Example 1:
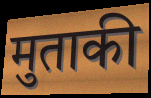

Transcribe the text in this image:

मुताकी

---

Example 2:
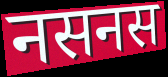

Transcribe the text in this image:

नसनस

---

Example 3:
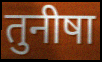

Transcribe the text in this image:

तुनीषा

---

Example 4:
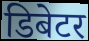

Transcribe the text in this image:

डिबेटर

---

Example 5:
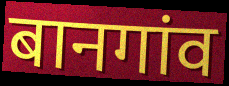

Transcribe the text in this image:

बानगांव